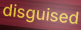
disguised